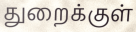
துறைக்குள்